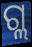
ଗ୍ଲ